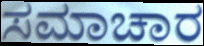
ಸಮಾಚಾರ